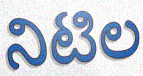
ನಿಟಿಲ